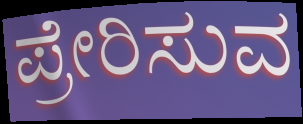
ಪ್ರೇರಿಸುವ